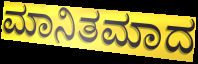
ಮಾನಿತಮಾದ